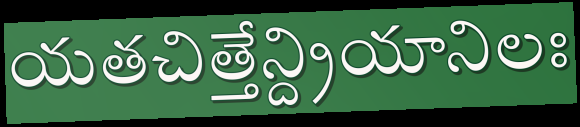
యతచిత్తేన్ద్రియానిలః